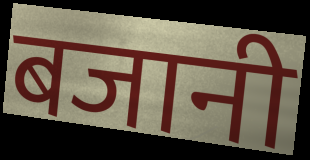
बजानी